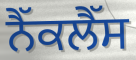
ਨੈੱਕਲੈੱਸ